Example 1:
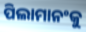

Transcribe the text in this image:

ପିଲାମାନଂକୁ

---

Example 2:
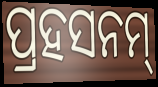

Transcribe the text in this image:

ପ୍ରହସନମ୍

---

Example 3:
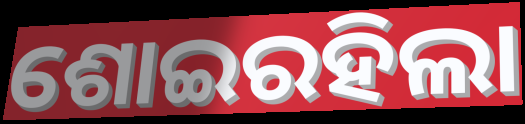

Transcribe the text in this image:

ଶୋଇରହିଲା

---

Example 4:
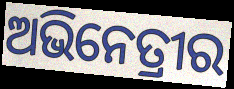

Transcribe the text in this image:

ଅଭିନେତ୍ରୀର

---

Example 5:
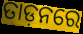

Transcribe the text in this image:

ତାଡ଼ନରେ